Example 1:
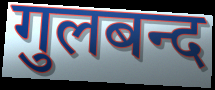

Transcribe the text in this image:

गुलबन्द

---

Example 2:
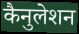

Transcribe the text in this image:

कैनुलेशन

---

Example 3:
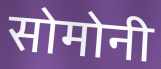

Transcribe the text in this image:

सोमोनी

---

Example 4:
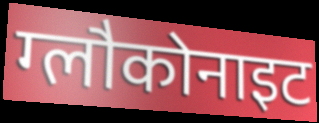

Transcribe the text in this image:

ग्लौकोनाइट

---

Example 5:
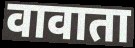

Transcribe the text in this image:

वावाता